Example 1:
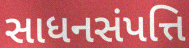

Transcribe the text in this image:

સાધનસંપત્તિ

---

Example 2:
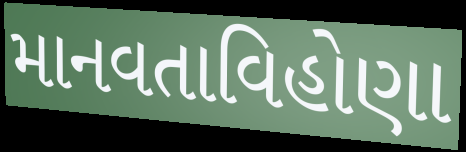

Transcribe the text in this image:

માનવતાવિહોણા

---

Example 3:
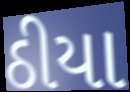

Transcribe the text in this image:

ઠીયા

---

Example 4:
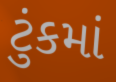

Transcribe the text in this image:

ટુંકમાં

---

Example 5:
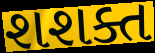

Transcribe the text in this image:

શશક્ત